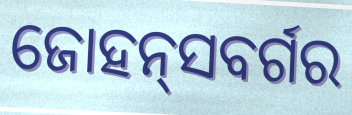
ଜୋହନ୍‌ସବର୍ଗର